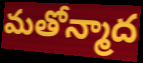
మతోన్మాద